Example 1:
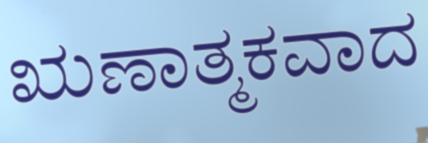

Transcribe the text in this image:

ಋಣಾತ್ಮಕವಾದ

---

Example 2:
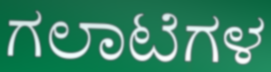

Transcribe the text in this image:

ಗಲಾಟೆಗಳ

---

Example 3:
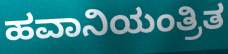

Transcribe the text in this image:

ಹವಾನಿಯಂತ್ರಿತ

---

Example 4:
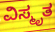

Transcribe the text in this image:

ವಿಸ್ಮೃತ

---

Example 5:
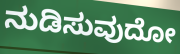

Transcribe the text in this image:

ನುಡಿಸುವುದೋ